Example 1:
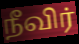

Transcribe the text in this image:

நீவிர்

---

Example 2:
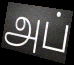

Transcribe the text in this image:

அப்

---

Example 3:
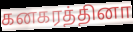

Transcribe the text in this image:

கனகரத்தினா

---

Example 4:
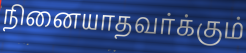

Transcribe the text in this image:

நினையாதவர்க்கும்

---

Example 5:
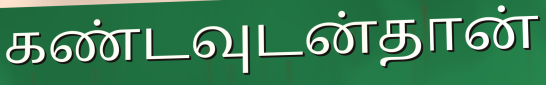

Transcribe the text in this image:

கண்டவுடன்தான்